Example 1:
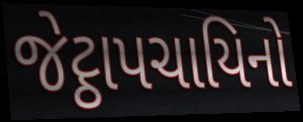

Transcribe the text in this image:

જેટ્ઠાપચાયિનો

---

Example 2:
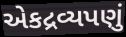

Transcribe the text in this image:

એકદ્રવ્યપણું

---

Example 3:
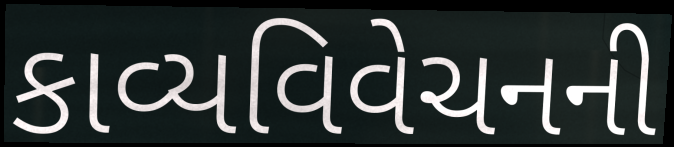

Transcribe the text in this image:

કાવ્યવિવેચનની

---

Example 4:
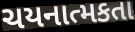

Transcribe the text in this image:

ચયનાત્મકતા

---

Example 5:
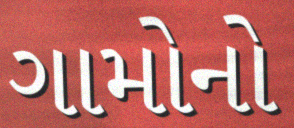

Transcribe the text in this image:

ગામોનો